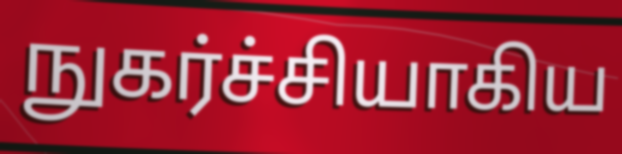
நுகர்ச்சியாகிய